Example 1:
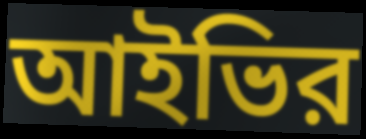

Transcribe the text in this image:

আইভির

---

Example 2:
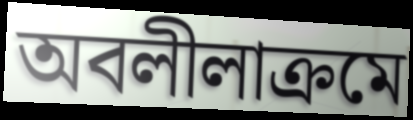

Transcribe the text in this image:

অবলীলাক্রমে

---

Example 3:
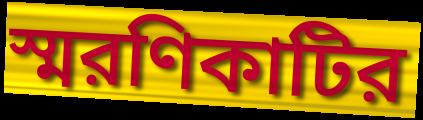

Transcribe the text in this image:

স্মরণিকাটির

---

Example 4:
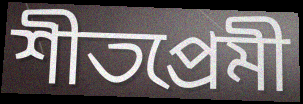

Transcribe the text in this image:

শীতপ্রেমী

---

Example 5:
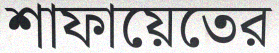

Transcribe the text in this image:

শাফায়েতের